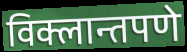
विक्लान्तपणे